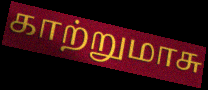
காற்றுமாசு